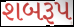
શબરૂપ